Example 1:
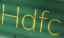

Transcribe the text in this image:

Hdfc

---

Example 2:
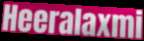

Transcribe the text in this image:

Heeralaxmi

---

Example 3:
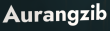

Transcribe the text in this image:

Aurangzib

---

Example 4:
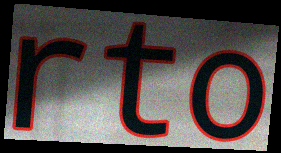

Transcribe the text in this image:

rto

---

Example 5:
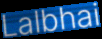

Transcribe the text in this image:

Lalbhai